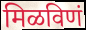
मिळविणं